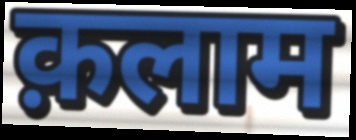
क़लाम